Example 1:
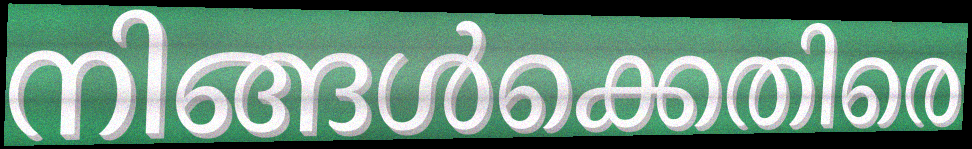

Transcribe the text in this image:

നിങ്ങൾക്കെതിരെ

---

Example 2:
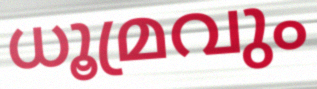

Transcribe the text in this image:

ധൂമ്രവും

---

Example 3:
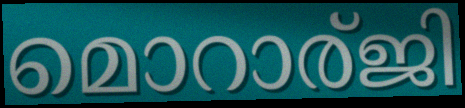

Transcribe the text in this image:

മൊറാര്ജി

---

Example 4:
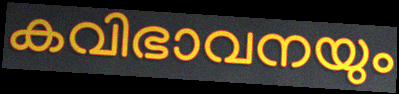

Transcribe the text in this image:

കവിഭാവനയും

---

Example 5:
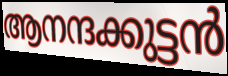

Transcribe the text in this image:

ആനന്ദക്കുട്ടൻ